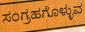
ಸಂಗ್ರಹಗೊಳ್ಳುವ